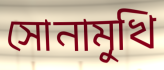
সোনামুখি